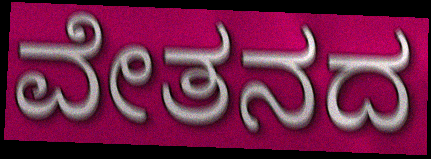
ವೇತನದ